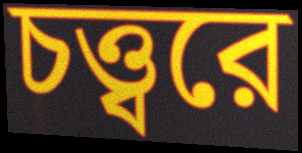
চত্ত্বরে